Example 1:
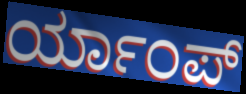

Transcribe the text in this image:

ರ್ಯಾಂಪ್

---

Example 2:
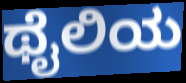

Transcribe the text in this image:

ಥೈಲಿಯ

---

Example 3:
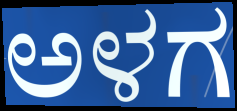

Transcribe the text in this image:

ಅಳಗ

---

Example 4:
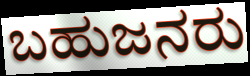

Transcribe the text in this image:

ಬಹುಜನರು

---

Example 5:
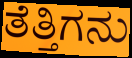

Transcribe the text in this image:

ತೆತ್ತಿಗನು